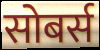
सोबर्स